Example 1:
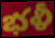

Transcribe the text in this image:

భళీ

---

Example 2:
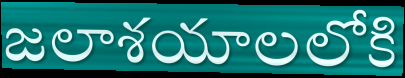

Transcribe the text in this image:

జలాశయాలలోకి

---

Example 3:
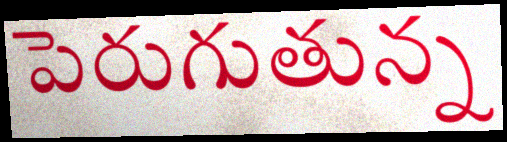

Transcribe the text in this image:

పెరుగుతున్న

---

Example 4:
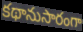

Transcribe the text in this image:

కథానుసారంగా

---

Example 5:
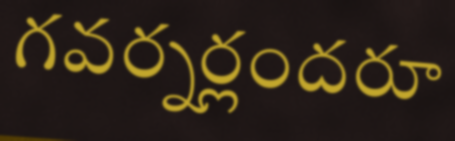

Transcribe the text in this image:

గవర్నర్లందరూ